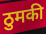
ठुमकी